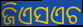
ଜିଏସଏଚ